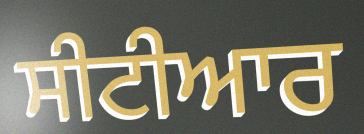
ਸੀਟੀਆਰ